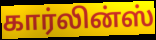
கார்லின்ஸ்